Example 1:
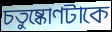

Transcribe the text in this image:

চতুষ্কোণটাকে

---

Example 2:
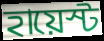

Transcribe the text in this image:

হায়েস্ট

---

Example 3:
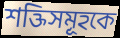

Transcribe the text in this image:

শক্তিসমূহকে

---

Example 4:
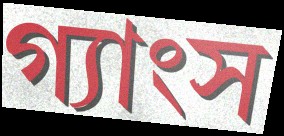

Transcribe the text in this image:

গ্যাংস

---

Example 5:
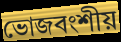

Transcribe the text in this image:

ভোজবংশীয়